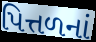
પિત્તળનાં